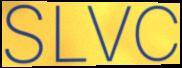
SLVC